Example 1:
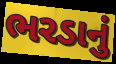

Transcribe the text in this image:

ભરડાનું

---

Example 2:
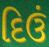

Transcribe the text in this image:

દિઉં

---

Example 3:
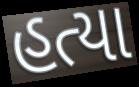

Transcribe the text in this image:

હત્યા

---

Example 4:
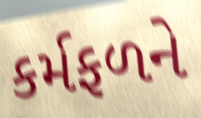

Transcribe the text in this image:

કર્મફળને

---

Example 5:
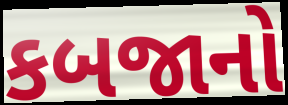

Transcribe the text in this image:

કબજાનો